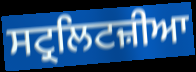
ਸਟ੍ਰਲਿਟਜ਼ੀਆ